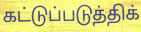
கட்டுப்படுத்திக்